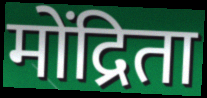
मोंद्रिता